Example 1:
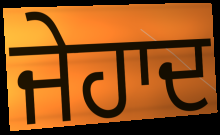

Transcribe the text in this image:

ਜੇਹਾਦ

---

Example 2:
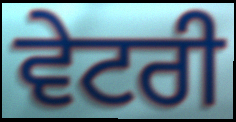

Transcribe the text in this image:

ਵੇਟਰੀ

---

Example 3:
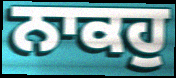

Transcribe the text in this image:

ਨਾਕਹੁ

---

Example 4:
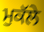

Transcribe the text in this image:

ਮੁਕੱਲੇ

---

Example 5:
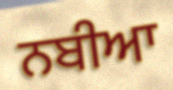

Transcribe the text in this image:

ਨਬੀਆ